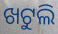
ଖଟୁଲି